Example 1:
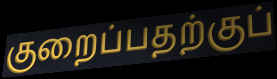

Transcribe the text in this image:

குறைப்பதற்குப்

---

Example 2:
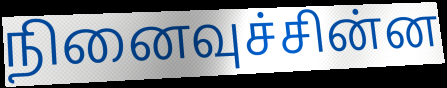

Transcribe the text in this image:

நினைவுச்சின்ன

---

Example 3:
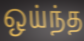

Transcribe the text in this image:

ஒய்ந்த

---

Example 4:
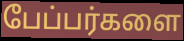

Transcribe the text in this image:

பேப்பர்களை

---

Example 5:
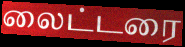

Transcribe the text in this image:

லைட்டரை